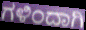
ಗಳಿಂದಾಗಿ